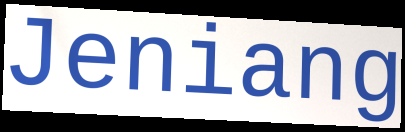
Jeniang